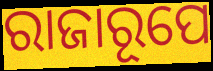
ରାଜାରୂପେ